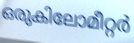
ഒരുകിലോമീറ്റർ